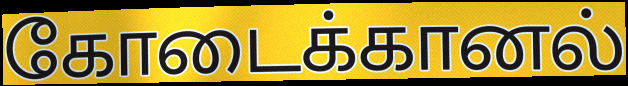
கோடைக்கானல்